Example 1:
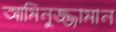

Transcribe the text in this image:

আমিনুজ্জামান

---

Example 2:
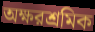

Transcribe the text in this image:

অক্ষরশ্রমিক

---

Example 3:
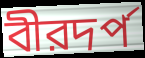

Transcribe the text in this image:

বীরদর্প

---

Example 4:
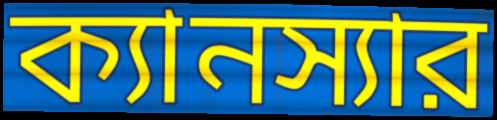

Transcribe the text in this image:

ক্যানস্যার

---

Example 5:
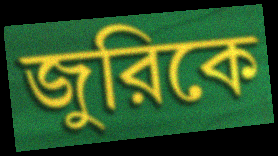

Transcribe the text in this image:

জুরিকে